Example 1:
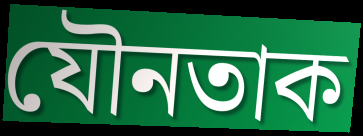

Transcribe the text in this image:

যৌনতাক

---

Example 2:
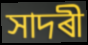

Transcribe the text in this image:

সাদৰী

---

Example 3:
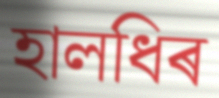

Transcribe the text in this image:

হালধিৰ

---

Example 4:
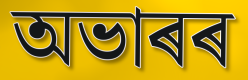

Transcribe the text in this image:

অভাৰৰ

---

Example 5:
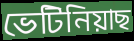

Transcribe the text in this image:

ভেটিনিয়াছ